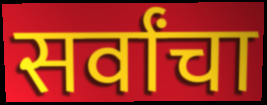
सर्वांचा